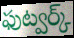
ఫుట్వర్క్